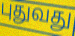
புதுவது